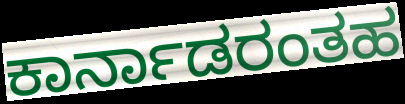
ಕಾರ್ನಾಡರಂತಹ